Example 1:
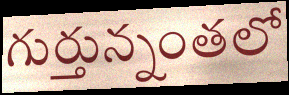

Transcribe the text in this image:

గుర్తున్నంతలో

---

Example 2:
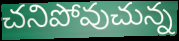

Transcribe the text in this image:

చనిపోవుచున్న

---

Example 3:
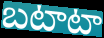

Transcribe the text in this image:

బటాటా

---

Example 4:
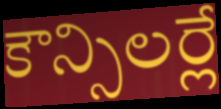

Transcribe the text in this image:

కౌన్సిలర్లే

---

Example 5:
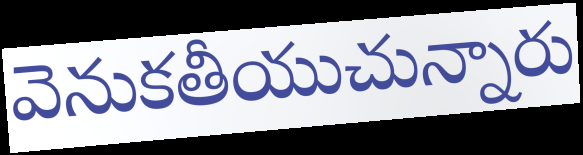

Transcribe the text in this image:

వెనుకతీయుచున్నారు